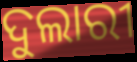
ଦୁଲାରୀ